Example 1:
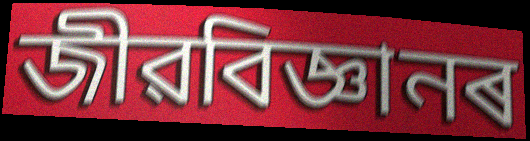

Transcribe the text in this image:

জীৱবিজ্ঞানৰ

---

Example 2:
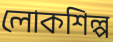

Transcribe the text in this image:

লোকশিল্প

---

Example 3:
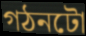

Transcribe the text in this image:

গঠনটো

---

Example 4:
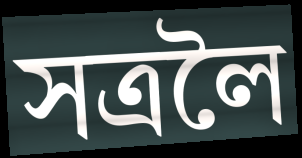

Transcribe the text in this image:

সত্ৰলৈ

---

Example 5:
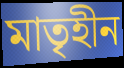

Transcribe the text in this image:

মাতৃহীন